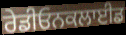
ਰੇਡੀਓਨਕਲਾਈਡ